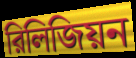
রিলিজিয়ন